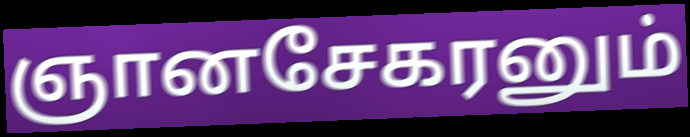
ஞானசேகரனும்